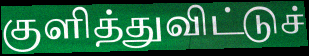
குளித்துவிட்டுச்